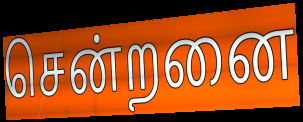
சென்றனை